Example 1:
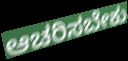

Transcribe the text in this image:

ಆಚರಿಸಬೇಕು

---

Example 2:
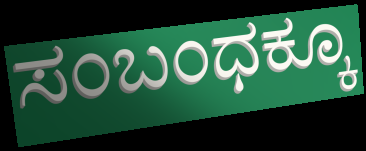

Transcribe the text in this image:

ಸಂಬಂಧಕ್ಕೂ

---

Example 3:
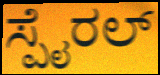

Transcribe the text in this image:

ಸ್ಪೈರಲ್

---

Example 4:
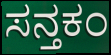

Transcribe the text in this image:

ಸನ್ತಕಂ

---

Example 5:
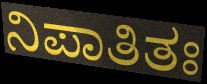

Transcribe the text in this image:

ನಿಪಾತಿತಃ